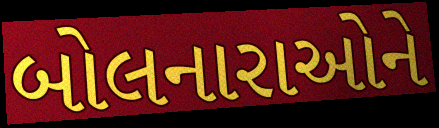
બોલનારાઓને